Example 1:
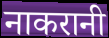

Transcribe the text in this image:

नाकरानी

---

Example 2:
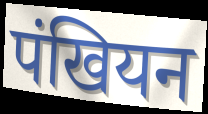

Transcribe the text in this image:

पंखियन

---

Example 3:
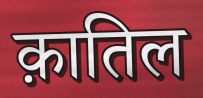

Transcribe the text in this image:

क़ातिल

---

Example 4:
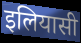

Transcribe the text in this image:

इलियासी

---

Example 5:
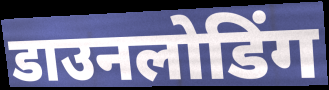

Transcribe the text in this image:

डाउनलोडिंग